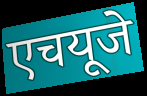
एचयूजे